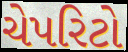
ચેપરિટો